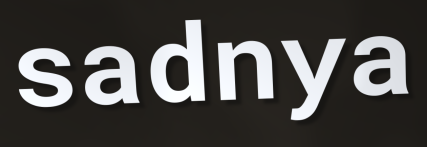
sadnya